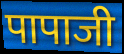
पापाजी